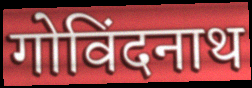
गोविंदनाथ